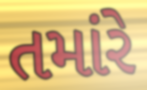
તમાંરે